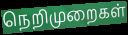
நெறிமுறைகள்